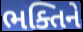
ભક્તિને